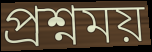
প্রশ্নময়